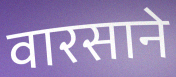
वारसाने